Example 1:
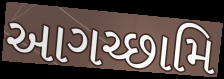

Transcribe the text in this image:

આગચ્છામિ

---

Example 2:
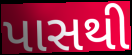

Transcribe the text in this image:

પાસથી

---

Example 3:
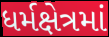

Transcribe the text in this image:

ધર્મક્ષેત્રમાં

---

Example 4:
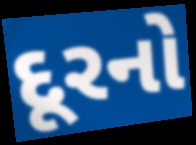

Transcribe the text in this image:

દૂરનો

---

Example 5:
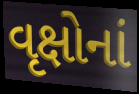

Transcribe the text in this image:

વૃક્ષોનાં